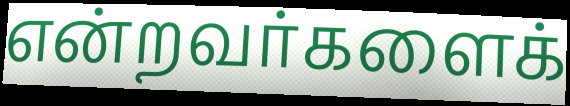
என்றவர்களைக்